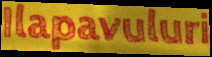
Ilapavuluri